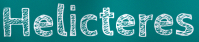
Helicteres